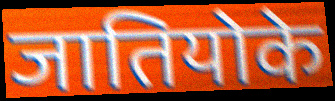
जातियोके